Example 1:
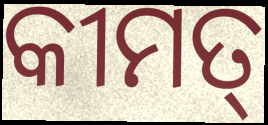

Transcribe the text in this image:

କୀମତ୍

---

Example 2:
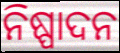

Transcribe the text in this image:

ନିଷ୍ପାଦନ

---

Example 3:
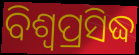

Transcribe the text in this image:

ବିଶ୍ଵପ୍ରସିଦ୍ଧ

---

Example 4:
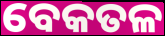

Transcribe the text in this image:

ବେକତଳ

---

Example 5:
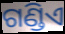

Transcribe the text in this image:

ଗଣ୍ଡିଏ